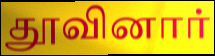
தூவினார்